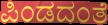
ಪಿಂಡದಂತೆ